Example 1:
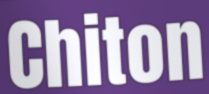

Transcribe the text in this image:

Chiton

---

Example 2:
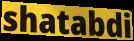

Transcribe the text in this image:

shatabdi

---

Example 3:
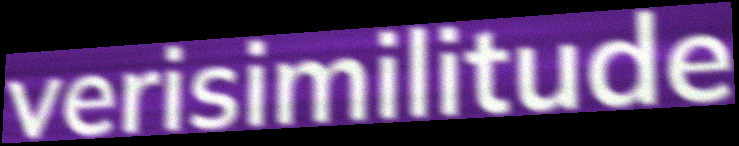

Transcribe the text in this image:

verisimilitude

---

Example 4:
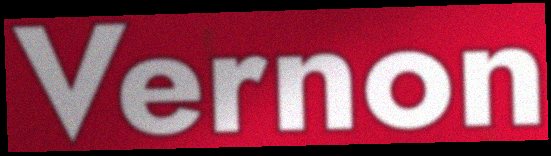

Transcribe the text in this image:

Vernon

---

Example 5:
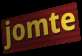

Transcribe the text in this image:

jomte